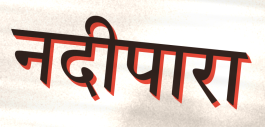
नदीपारा